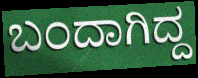
ಬಂದಾಗಿದ್ದ